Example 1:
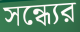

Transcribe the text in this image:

সন্ধ্যের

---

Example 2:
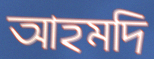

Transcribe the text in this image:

আহমদি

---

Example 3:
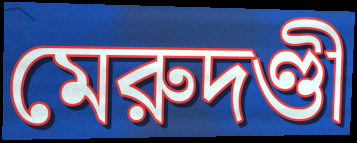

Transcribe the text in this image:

মেরুদণ্ডী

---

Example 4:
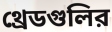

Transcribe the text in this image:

থ্রেডগুলির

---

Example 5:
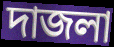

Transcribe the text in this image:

দাজলা